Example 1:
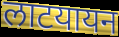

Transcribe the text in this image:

लाटयायन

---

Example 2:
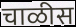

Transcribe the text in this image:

चाळीस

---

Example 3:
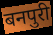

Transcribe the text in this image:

बनपुरी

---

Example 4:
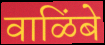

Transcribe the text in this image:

वाळिंबे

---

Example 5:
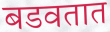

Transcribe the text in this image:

बडवतात